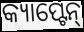
କ୍ୟାପ୍ଟେନ୍